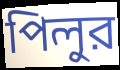
পিলুর